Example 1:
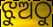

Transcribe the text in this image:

ଝୁଅଠୁ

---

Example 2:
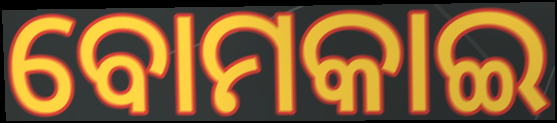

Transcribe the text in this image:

ବୋମକାଇ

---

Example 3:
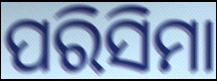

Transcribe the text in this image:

ପରିସିମା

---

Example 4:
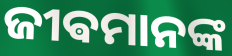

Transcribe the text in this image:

ଜୀଵମାନଙ୍କ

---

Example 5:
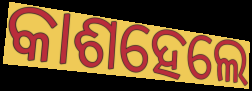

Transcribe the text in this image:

କାଶହେଲେ